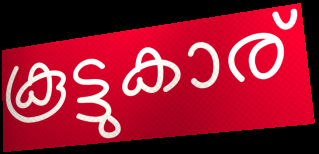
കൂട്ടുകാര്